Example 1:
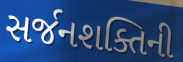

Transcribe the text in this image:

સર્જનશક્તિની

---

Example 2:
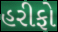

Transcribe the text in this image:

હરીફો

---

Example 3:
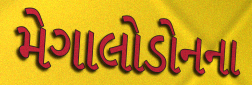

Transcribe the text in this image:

મેગાલોડોનના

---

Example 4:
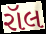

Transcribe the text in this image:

રૉલ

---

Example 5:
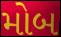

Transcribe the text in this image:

મોબ